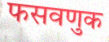
फसवणुक